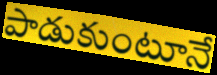
పాడుకుంటూనే